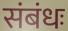
संबंधः